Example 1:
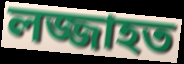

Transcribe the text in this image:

লজ্জাহত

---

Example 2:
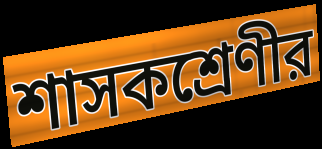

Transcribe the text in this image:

শাসকশ্রেণীর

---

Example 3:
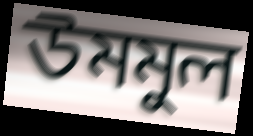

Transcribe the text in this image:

উমমুল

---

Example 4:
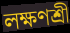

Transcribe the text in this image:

লক্ষণশ্রী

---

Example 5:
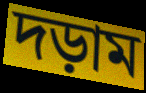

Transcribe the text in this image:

দড়াম